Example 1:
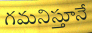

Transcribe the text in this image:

గమనిస్తూనే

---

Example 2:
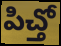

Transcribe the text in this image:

పిచ్తో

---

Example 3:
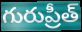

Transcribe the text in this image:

గురుప్రీత్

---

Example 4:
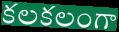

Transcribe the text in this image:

కలకలంగా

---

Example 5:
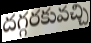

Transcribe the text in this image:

దగ్గరకువచ్చి